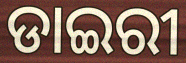
ଡାଇରୀ